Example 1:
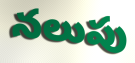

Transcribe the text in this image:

నలుపు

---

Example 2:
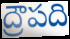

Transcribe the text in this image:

ద్రౌపది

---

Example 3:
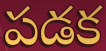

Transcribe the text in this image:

పడక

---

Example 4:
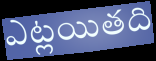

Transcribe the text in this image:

ఎట్లయితది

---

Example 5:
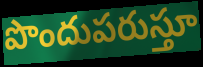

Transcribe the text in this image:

పొందుపరుస్తూ